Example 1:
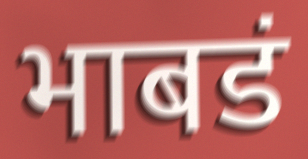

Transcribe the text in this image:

भाबडं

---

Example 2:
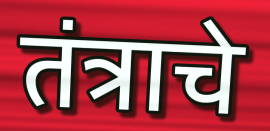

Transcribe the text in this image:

तंत्राचे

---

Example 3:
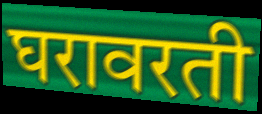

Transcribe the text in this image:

घरावरती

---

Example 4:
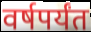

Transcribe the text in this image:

वर्षपर्यंत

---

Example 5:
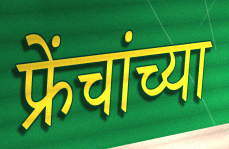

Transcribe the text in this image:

फ्रेंचांच्या